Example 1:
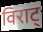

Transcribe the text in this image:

विराट्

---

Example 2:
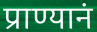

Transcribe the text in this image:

प्राण्यानं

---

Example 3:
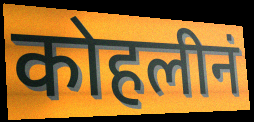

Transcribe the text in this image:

कोहलीनं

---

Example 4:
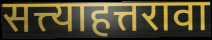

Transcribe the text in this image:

सत्त्याहत्तरावा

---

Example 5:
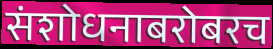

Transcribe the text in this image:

संशोधनाबरोबरच